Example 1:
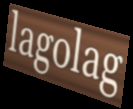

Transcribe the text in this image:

lagolag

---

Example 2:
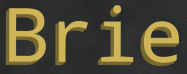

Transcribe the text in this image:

Brie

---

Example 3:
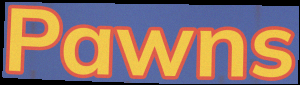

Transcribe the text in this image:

Pawns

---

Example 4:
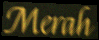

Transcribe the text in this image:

Merah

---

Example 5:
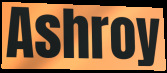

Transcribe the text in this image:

Ashroy